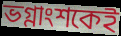
ভগ্নাংশকেই